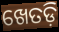
ଖେତଡ଼ି